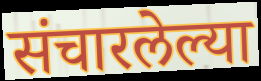
संचारलेल्या